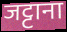
जट्टाना